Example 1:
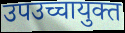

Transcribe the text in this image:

उपउच्चायुक्त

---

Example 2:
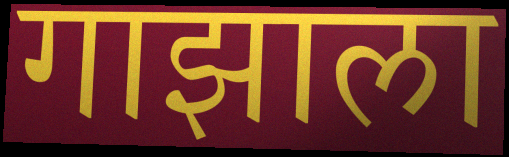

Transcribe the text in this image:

गाझाला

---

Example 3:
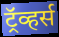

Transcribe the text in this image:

ट्रॅव्हर्स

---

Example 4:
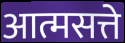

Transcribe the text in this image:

आत्मसत्ते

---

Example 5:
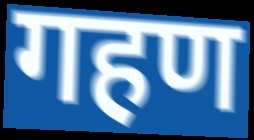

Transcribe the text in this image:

गहण